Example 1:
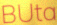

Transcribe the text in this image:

BUta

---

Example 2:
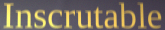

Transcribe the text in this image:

Inscrutable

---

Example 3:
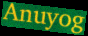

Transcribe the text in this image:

Anuyog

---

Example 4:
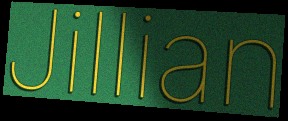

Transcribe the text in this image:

Jillian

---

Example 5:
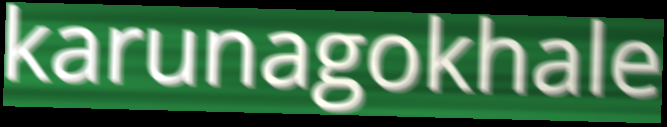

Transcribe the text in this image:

karunagokhale